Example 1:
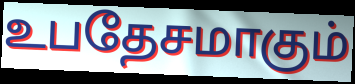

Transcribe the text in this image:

உபதேசமாகும்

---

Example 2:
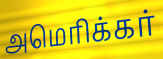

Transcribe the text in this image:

அமெரிக்கர்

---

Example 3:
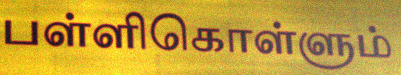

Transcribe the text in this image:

பள்ளிகொள்ளும்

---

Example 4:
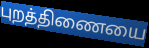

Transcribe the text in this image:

புறத்திணையை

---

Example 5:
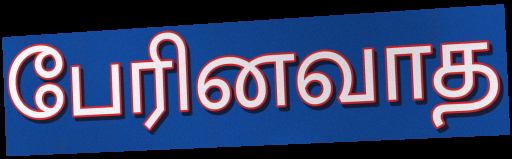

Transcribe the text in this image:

பேரினவாத